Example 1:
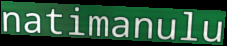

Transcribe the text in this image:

natimanulu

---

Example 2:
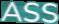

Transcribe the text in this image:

ASS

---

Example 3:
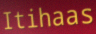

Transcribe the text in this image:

Itihaas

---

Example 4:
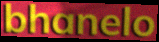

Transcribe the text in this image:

bhanelo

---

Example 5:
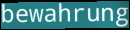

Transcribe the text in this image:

bewahrung